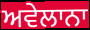
ਅਵੇਲਾਨਾ